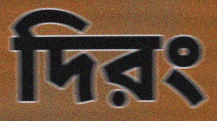
দিরং